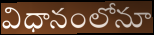
విధానంలోనూ